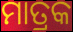
ମାତ୍ରକ